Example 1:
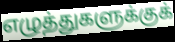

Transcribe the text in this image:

எழுத்துகளுக்குக்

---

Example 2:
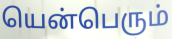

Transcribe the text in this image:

யென்பெரும்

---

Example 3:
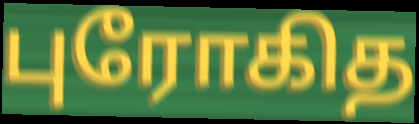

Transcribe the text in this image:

புரோகித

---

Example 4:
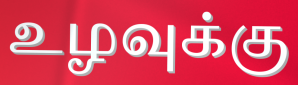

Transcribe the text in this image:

உழவுக்கு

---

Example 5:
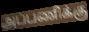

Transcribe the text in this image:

அப்பணிக்கு